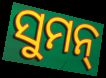
ସୁମନ୍